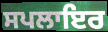
ਸਪਲਾਇਰ